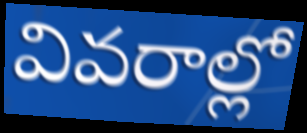
వివరాల్లో